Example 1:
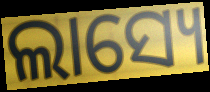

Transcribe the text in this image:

ଲାସ୍ୟେ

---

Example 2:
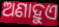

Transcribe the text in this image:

ଅଣାହୁଏ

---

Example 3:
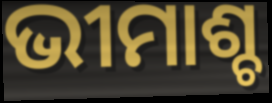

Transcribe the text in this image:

ଭୀମାଶ୍ଚ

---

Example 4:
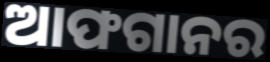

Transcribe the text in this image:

ଆଫଗାନର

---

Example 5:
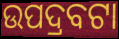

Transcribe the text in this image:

ଉପଦ୍ରବଟା